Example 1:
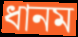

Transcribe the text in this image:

ধানম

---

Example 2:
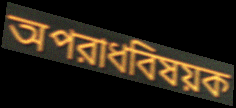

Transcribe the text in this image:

অপরাধবিষয়ক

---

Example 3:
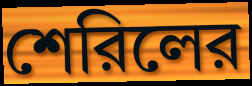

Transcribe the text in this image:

শেরিলের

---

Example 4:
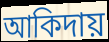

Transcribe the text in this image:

আকিদায়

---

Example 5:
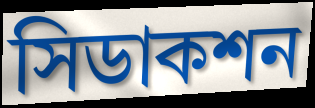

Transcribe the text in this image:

সিডাকশন